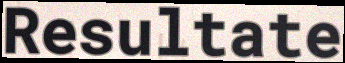
Resultate